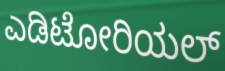
ಎಡಿಟೋರಿಯಲ್